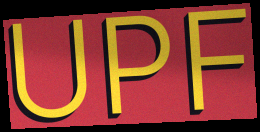
UPF